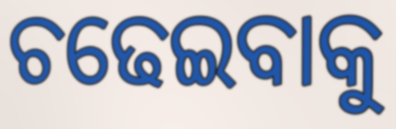
ଚଢେଇବାକୁ